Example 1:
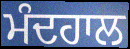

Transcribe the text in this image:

ਮੰਦਹਾਲ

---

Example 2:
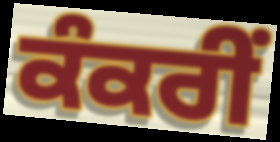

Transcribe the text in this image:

ਕੰਕਰੀਂ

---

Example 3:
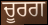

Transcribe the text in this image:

ਚੂਰਗ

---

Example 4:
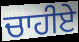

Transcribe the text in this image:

ਚਾਹੀਏ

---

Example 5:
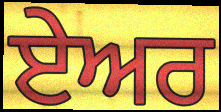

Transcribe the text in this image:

ਏੇਅਰ